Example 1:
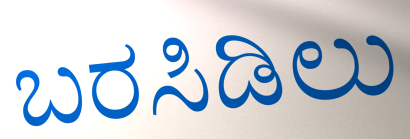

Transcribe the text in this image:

ಬರಸಿಡಿಲು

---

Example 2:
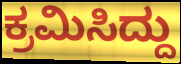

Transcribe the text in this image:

ಕ್ರಮಿಸಿದ್ದು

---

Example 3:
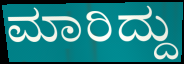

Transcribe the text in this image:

ಮಾರಿದ್ದು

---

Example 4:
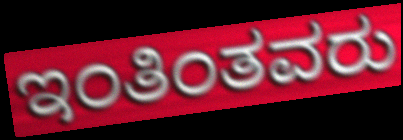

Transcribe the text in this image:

ಇಂತಿಂತವರು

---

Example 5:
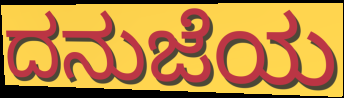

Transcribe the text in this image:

ದನುಜೆಯ